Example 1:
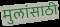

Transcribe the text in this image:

मुलांसाठी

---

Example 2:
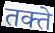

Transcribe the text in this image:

तक्ते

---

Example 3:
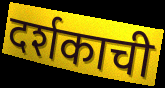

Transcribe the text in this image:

दर्शकाची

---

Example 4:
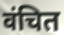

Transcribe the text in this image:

वंचित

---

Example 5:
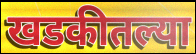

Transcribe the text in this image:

खडकीतल्या